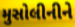
મુસોલીનીને